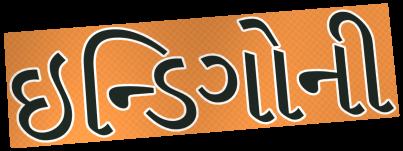
ઇન્ડિગોની